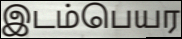
இடம்பெயர